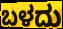
ಬಳದು